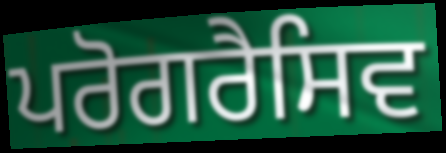
ਪਰੋਗਰੈਸਿਵ